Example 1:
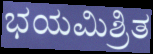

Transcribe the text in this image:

ಭಯಮಿಶ್ರಿತ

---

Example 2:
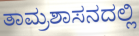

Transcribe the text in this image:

ತಾಮ್ರಶಾಸನದಲ್ಲಿ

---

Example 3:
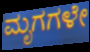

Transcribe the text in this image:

ಮೃಗಗಳೇ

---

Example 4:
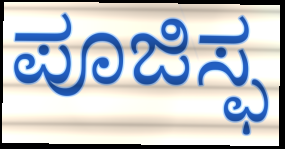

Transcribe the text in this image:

ಪೂಜಿಸ್ಫ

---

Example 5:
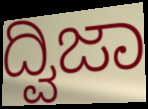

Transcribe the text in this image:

ದ್ವಿಜಾ